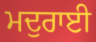
ਮਦੁਰਾਈ